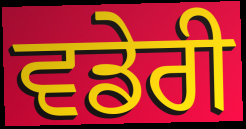
ਵਡੇਰੀ